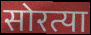
सोरत्या